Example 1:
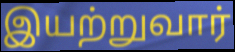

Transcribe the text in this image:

இயற்றுவார்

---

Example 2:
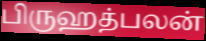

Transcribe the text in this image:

பிருஹத்பலன்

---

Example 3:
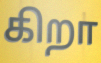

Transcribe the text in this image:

கிறா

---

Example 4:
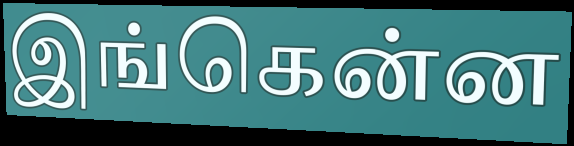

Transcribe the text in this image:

இங்கென்ன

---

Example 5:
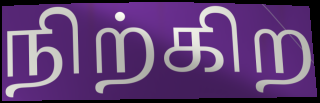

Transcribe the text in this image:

நிற்கிற